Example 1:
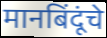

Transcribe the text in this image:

मानबिंदूंचे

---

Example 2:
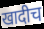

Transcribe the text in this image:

खादीच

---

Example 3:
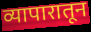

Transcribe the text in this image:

व्यापारातून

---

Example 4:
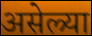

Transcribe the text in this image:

असेल्या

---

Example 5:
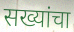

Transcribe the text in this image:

सख्यांचा